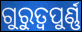
ଗୁରୁତ୍ୱପୁର୍ଣ୍ଣ